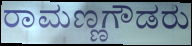
ರಾಮಣ್ಣಗೌಡರು